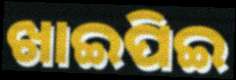
ଖାଇପିଇ